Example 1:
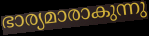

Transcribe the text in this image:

ഭാര്യമാരാകുന്നു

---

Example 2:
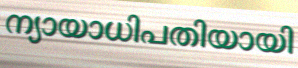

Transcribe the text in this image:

ന്യായാധിപതിയായി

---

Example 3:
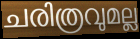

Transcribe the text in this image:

ചരിത്രവുമല്ല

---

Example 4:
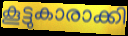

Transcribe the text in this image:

കൂട്ടുകാരാക്കി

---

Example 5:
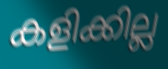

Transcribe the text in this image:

കളിക്കില്ല